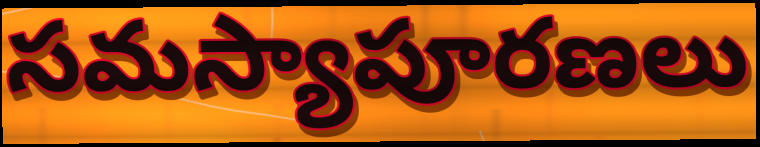
సమస్యాపూరణలు